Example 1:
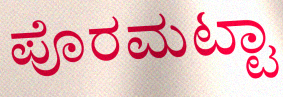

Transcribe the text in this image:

ಪೊರಮಟ್ಟಾ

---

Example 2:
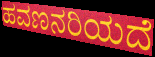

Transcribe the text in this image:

ಹವಣನರಿಯದೆ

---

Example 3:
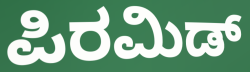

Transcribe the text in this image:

ಪಿರಮಿಡ್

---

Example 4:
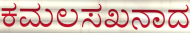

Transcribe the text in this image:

ಕಮಲಸಖನಾದ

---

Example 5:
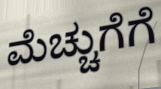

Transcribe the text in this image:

ಮೆಚ್ಚುಗೆಗೆ